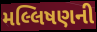
મલ્લિષણની